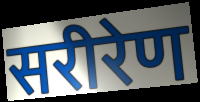
सरीरेण